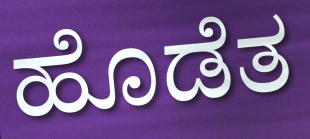
ಹೊಡೆತ